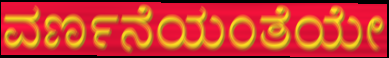
ವರ್ಣನೆಯಂತೆಯೇ